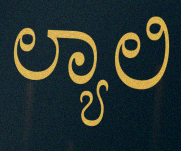
ಲ್ಯಾಲಿ